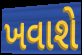
ખવાશે